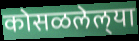
कोसळलेल्या